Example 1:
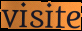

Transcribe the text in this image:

visite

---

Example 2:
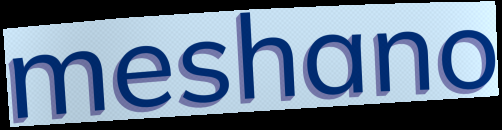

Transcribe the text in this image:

meshano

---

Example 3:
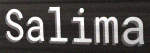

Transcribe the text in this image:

Salima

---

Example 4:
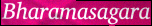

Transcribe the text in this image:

Bharamasagara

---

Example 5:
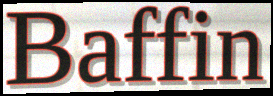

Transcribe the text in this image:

Baffin